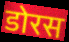
डोरस